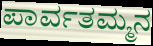
ಪಾರ್ವತಮ್ಮನ